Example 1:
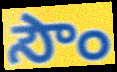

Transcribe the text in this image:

సౌం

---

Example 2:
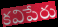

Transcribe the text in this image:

కవిపేరు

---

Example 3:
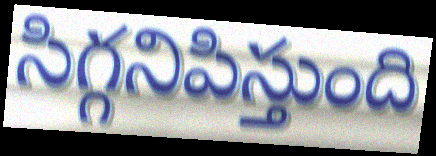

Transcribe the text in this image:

సిగ్గనిపిస్తుంది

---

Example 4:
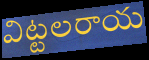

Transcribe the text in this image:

విట్టలరాయ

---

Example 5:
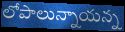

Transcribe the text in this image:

లోపాలున్నాయన్న